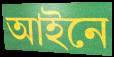
আইনে